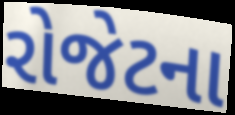
રોજેટના